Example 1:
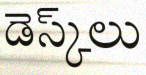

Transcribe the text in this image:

డెస్క్‌లు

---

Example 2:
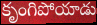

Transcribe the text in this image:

కృంగిపోయాడు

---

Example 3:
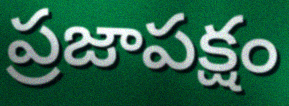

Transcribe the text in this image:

ప్రజాపక్షం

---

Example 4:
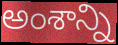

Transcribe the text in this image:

అంశాన్ని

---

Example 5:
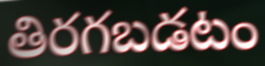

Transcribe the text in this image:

తిరగబడటం